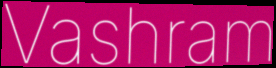
Vashram